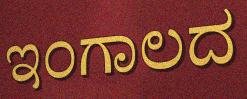
ಇಂಗಾಲದ